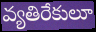
వ్యతిరేకులూ